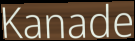
Kanade